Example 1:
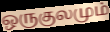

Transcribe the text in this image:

ஒருகுலமும்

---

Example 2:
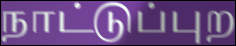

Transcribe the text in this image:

நாட்டுப்புற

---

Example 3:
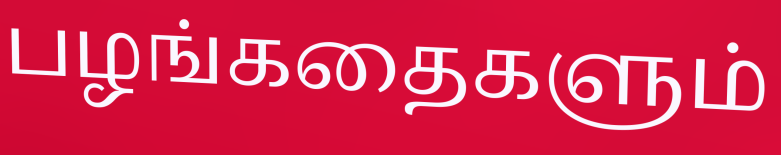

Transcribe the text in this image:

பழங்கதைகளும்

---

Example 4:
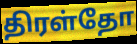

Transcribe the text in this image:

திரள்தோ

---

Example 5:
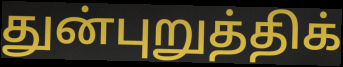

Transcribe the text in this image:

துன்புறுத்திக்